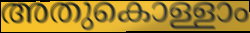
അതുകൊള്ളാം